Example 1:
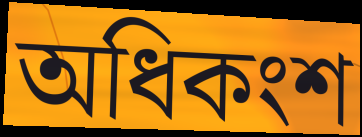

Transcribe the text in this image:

অধিকংশ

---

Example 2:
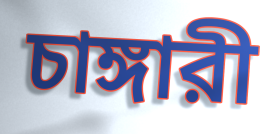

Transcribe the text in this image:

চাঙ্গারী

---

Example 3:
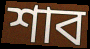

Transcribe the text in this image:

শাব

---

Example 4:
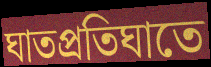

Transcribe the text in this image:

ঘাতপ্রতিঘাতে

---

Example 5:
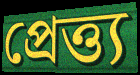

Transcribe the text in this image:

প্রেত্ত্য